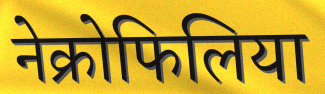
नेक्रोफिलिया